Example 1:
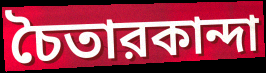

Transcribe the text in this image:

চৈতারকান্দা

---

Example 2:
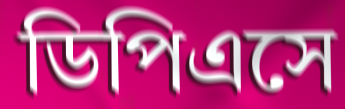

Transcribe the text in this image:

ডিপিএসে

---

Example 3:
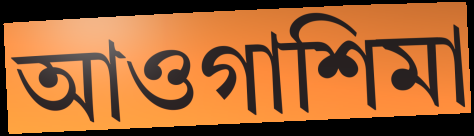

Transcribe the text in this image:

আওগাশিমা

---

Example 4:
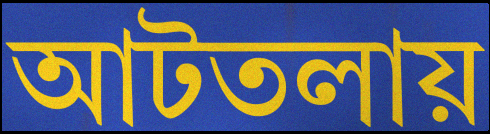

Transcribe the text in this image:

আটতলায়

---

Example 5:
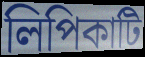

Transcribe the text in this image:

লিপিকাটি